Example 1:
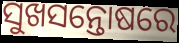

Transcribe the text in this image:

ସୁଖସନ୍ତୋଷରେ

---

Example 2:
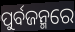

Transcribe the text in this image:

ପୁର୍ବଜନ୍ମରେ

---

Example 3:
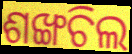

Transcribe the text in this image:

ଶଙ୍ଖଚିଲ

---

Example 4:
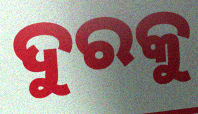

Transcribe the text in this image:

ଦୁରକୁ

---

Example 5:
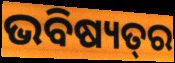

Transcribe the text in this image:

ଭବିଷ୍ୟତ୍‌ର